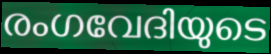
രംഗവേദിയുടെ